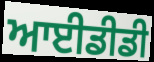
ਆਈਡੀਡੀ